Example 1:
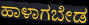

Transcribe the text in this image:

ಹಾಳಾಗಬೇಡ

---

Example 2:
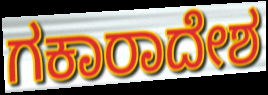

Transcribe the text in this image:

ಗಕಾರಾದೇಶ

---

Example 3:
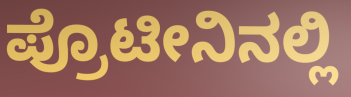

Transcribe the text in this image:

ಪ್ರೊಟೀನಿನಲ್ಲಿ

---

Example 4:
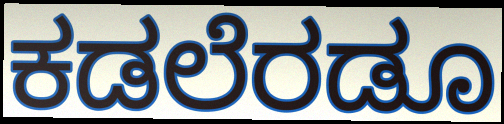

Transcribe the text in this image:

ಕಡಲೆರಡೂ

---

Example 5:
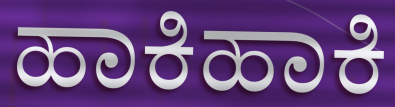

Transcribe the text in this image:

ಹಾಕಿಹಾಕಿ